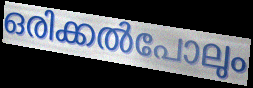
ഒരിക്കൽപോലും